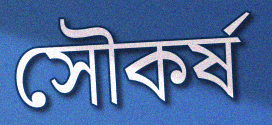
সৌকর্ষ